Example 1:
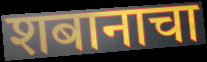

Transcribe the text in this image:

शबानाचा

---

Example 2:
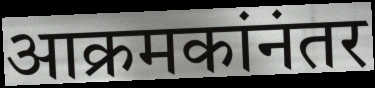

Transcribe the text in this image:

आक्रमकांनंतर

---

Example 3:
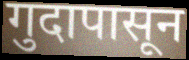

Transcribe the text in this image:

गुदापासून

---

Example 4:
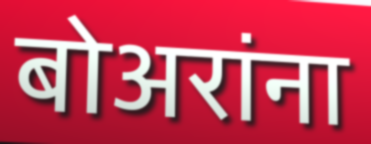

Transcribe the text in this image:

बोअरांना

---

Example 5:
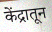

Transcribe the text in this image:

केंद्रातून